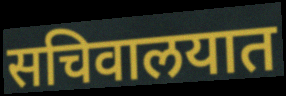
सचिवालयात